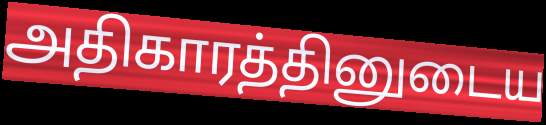
அதிகாரத்தினுடைய